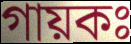
গায়কঃ